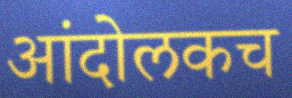
आंदोलकच